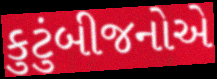
કુટુંબીજનોએ